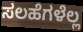
ಸಲಹೆಗಳೆಲ್ಲ